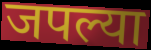
जपल्या